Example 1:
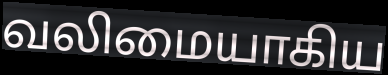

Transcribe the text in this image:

வலிமையாகிய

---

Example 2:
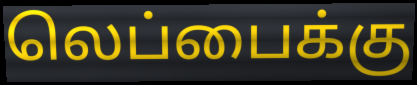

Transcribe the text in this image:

லெப்பைக்கு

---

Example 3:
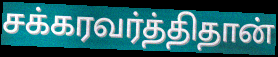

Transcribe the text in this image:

சக்கரவர்த்திதான்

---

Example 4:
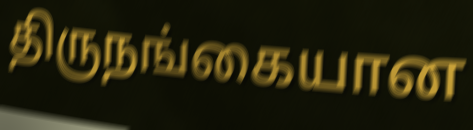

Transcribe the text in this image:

திருநங்கையான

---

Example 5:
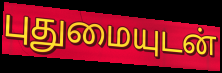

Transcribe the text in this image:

புதுமையுடன்